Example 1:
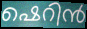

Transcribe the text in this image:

ഷെറിൻ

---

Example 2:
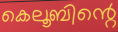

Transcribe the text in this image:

കെലൂബിന്റെ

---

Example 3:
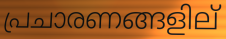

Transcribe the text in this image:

പ്രചാരണങ്ങളില്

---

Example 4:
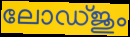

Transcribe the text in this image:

ലോഡ്ജും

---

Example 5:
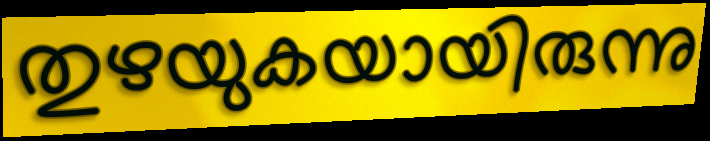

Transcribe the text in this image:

തുഴയുകയായിരുന്നു